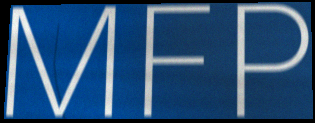
MFP